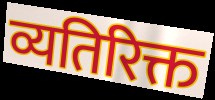
व्यतिरिक्त